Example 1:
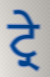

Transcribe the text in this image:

ਟ੍ਰੇ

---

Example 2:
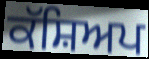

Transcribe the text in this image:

ਕੱਸ਼ਿਅਪ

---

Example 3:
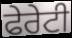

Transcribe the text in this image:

ਫੇਰੇਟੀ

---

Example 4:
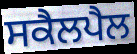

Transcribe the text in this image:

ਸਕੈਲਪੈਲ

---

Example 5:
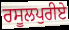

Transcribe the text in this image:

ਰਸੂਲਪੁਰੀਏ